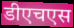
डीएचएस